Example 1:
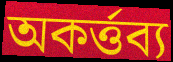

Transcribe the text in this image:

অকর্ত্তব্য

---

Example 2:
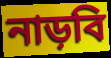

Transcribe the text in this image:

নাড়বি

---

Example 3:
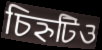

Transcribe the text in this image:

চিহ্নটিও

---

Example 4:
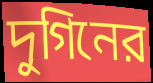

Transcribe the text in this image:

দুগিনের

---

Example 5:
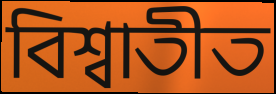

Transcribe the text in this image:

বিশ্বাতীত